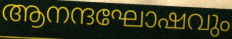
ആനന്ദഘോഷവും